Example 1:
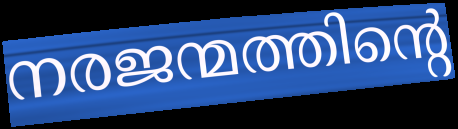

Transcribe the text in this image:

നരജന്മത്തിന്റെ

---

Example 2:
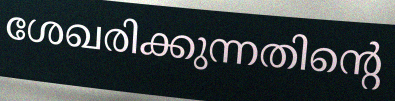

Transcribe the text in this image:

ശേഖരിക്കുന്നതിന്റെ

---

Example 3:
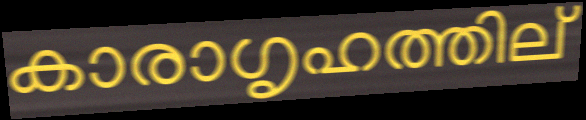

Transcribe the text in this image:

കാരാഗൃഹത്തില്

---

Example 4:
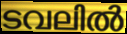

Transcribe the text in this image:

ടവലിൽ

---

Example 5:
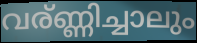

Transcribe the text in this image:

വര്ണ്ണിച്ചാലും